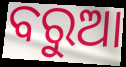
ବରୁଆ